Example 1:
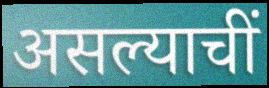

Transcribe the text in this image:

असल्याचीं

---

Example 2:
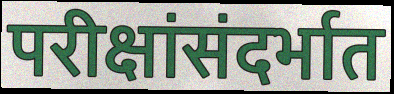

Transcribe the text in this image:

परीक्षांसंदर्भात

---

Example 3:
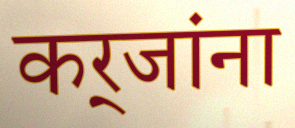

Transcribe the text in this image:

कर्जांना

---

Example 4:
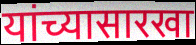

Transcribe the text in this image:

यांच्यासारखा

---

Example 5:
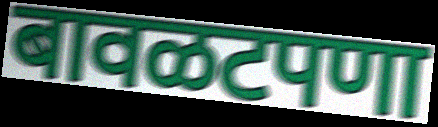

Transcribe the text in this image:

बावळटपणा